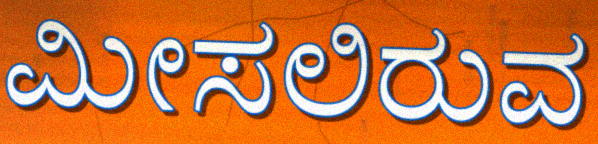
ಮೀಸಲಿರುವ